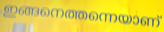
ഇങ്ങനെത്തന്നെയാണ്